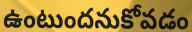
ఉంటుందనుకోవడం